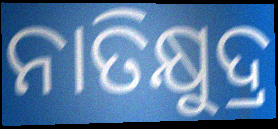
ନାତିକ୍ଷୁଦ୍ର